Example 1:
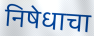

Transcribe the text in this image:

निषेधाचा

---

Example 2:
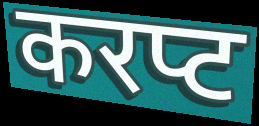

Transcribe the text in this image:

करप्ट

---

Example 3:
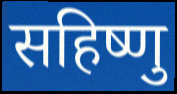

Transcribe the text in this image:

सहिष्णु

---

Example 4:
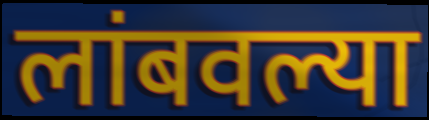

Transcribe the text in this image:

लांबवल्या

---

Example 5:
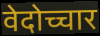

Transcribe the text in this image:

वेदोच्चार